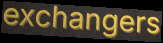
exchangers